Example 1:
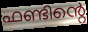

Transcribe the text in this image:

ഫണ്ടിന്റെ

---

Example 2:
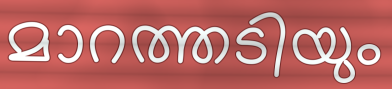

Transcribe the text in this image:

മാറത്തടിയും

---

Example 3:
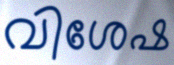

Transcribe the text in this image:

വിശേഷ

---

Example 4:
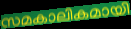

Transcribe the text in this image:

സമകാലികമായി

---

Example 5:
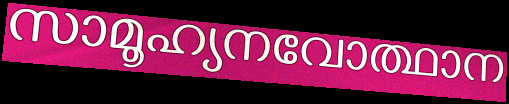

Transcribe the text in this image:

സാമൂഹ്യനവോത്ഥാന